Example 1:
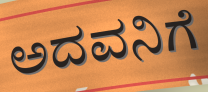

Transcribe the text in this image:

ಅದವನಿಗೆ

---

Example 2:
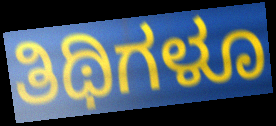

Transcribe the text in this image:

ತಿಥಿಗಳೂ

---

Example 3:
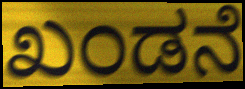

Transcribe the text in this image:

ಖಂಡನೆ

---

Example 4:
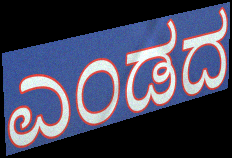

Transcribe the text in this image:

ಎಂಡದ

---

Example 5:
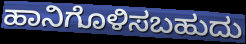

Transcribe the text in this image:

ಹಾನಿಗೊಳಿಸಬಹುದು